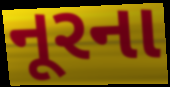
નૂરના